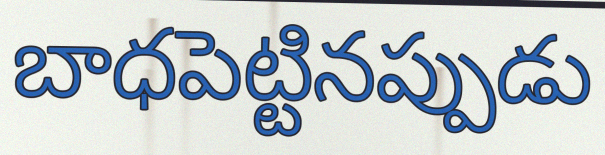
బాధపెట్టినప్పుడు